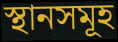
স্থানসমূহ